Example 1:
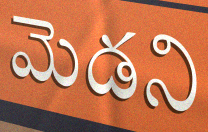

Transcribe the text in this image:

మెడని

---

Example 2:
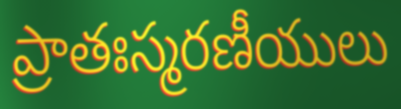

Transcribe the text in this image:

ప్రాతఃస్మరణీయులు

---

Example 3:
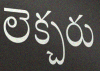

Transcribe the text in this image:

లెక్చరు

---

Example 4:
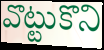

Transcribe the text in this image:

వొట్టుకొని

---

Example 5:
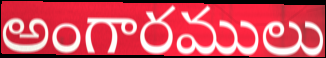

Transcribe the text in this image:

అంగారములు